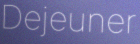
Dejeuner